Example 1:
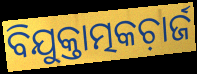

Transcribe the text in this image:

ବିଯୁକ୍ତାତ୍ମକଚ଼ାର୍ଜ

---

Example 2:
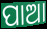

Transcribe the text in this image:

ପାଆ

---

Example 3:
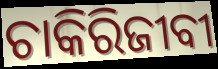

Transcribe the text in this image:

ଚାକିରିଜୀବୀ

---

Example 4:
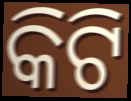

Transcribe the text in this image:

କିଟି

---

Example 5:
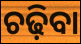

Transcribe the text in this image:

ଚଢ଼ିବା